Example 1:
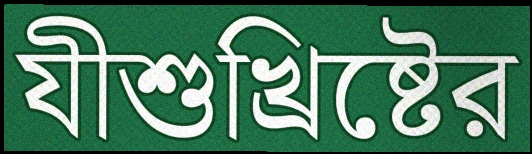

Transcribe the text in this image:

যীশুখ্রিষ্টের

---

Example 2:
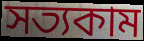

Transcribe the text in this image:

সত্যকাম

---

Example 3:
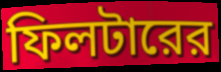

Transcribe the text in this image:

ফিলটারের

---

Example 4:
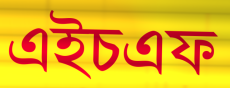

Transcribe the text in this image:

এইচএফ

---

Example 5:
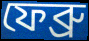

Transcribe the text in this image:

ফেব্রু